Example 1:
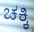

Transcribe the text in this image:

ಚಕ್ಕಿ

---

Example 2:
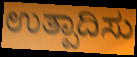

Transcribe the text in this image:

ಉತ್ಪಾದಿಸು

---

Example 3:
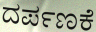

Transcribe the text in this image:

ದರ್ಪಣಕೆ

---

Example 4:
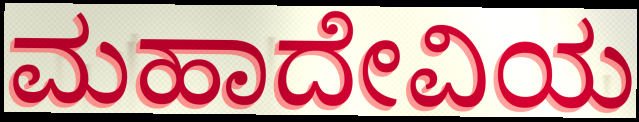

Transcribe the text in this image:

ಮಹಾದೇವಿಯ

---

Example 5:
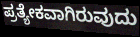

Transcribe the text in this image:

ಪ್ರತ್ಯೇಕವಾಗಿರುವುದು